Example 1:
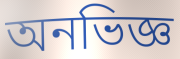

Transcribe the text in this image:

অনভিজ্ঞ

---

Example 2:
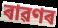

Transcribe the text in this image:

ৰাৱণৰ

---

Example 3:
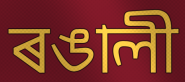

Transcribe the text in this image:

ৰঙালী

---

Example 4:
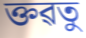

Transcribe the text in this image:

ক্তৱতু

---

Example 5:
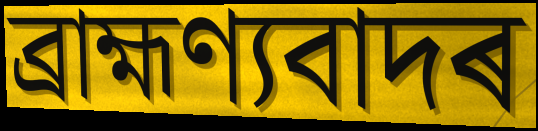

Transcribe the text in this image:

ব্ৰাহ্মণ্যবাদৰ